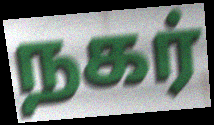
நகர்